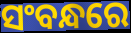
ସଂବନ୍ଧରେ